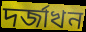
দৰ্জাখন